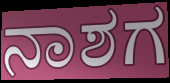
ನಾಶಗ